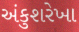
અંકુશરેખા